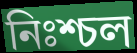
নিঃশ্চল